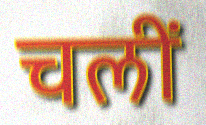
चलीं